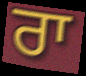
ਰਾ